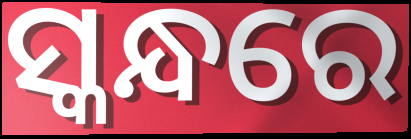
ସ୍କନ୍ଧରେ